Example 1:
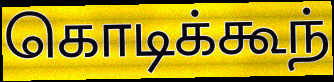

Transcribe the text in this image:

கொடிக்கூந்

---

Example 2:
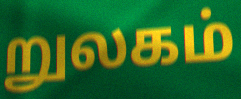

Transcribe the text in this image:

றுலகம்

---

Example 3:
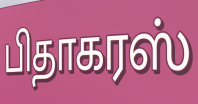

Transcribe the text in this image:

பிதாகரஸ்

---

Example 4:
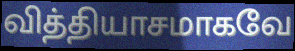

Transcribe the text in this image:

வித்தியாசமாகவே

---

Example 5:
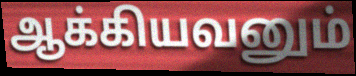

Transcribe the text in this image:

ஆக்கியவனும்